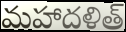
మహాదళిత్